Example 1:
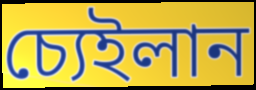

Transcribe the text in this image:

চ্যেইলান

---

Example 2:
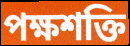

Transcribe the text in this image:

পক্ষশক্তি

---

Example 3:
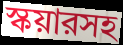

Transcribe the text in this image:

স্কয়ারসহ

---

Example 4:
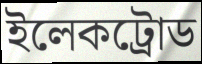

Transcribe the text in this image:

ইলেকট্রোড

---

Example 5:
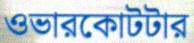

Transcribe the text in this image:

ওভারকোটটার